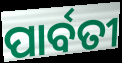
ପାର୍ବତୀ